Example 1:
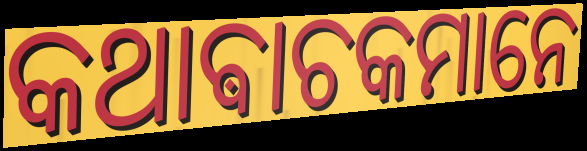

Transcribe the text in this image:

କଥାଵାଚକମାନେ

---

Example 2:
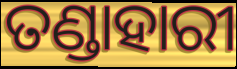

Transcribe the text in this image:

ତଣ୍ଡାହାରୀ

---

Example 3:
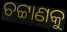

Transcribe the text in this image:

ଚଟ୍ଟାଣକୁ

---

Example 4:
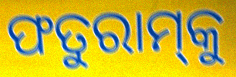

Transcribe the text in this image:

ଫତୁରାମ୍‌କୁ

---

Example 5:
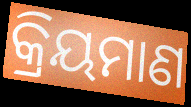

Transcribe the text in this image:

କ୍ରିୟମାଣ